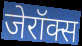
जेरॉक्स